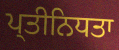
ਪ੍ਤੀਨਿਧਤਾ